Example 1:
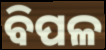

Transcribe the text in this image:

ବିପଳ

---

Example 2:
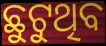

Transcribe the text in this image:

ଛୁଟୁଥିବ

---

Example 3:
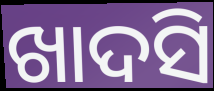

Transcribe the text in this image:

ଖାଦସି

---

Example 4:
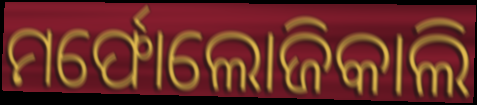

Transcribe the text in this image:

ମର୍ଫୋଲୋଜିକାଲି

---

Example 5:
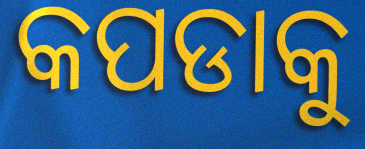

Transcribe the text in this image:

କପଡାକୁ